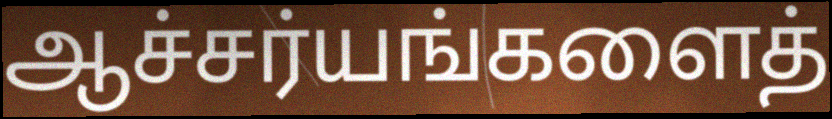
ஆச்சர்யங்களைத்